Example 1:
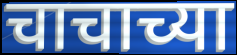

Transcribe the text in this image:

चाचाच्या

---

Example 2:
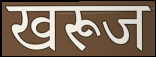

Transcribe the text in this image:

खरूज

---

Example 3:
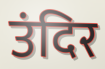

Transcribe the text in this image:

उंदिर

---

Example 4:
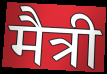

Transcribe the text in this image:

मैत्री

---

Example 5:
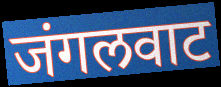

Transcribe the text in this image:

जंगलवाट